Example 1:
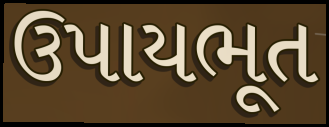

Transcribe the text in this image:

ઉપાયભૂત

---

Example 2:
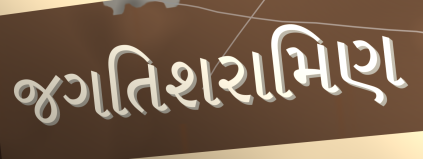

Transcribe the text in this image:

જગતિશરામિણ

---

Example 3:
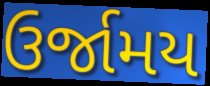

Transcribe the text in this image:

ઉર્જામય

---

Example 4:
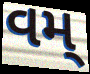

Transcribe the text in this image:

વમ્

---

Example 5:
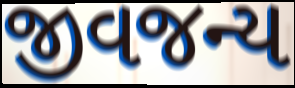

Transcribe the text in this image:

જીવજન્ય